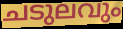
ചടുലവും